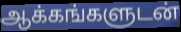
ஆக்கங்களுடன்